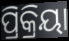
ପ୍ରିକ୍ରିୟା